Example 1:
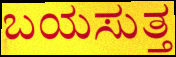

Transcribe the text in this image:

ಬಯಸುತ್ತ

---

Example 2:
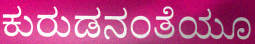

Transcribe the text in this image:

ಕುರುಡನಂತೆಯೂ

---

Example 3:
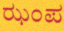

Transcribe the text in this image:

ಝಂಪ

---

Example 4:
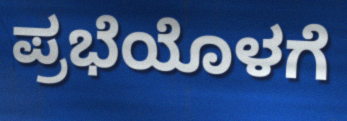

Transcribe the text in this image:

ಪ್ರಭೆಯೊಳಗೆ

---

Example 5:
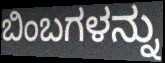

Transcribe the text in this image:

ಬಿಂಬಗಳನ್ನು